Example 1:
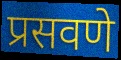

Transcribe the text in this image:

प्रसवणे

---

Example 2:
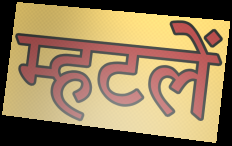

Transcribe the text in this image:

म्हटलें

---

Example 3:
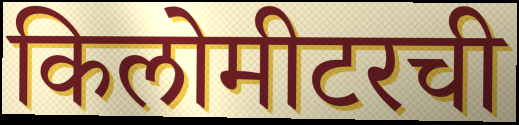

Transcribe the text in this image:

किलोमीटरची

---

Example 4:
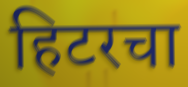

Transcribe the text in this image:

हिटरचा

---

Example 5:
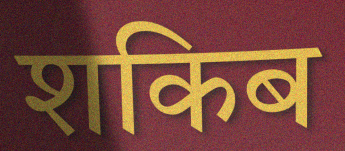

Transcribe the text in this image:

शकिब